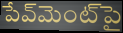
పేవ్‌మెంట్‌పై